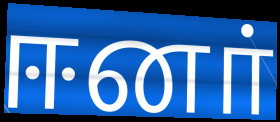
ஈனர்